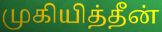
முகியித்தீன்